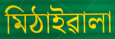
মিঠাইৱালা